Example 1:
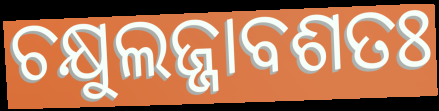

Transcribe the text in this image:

ଚକ୍ଷୁଲଜ୍ଜାବଶତଃ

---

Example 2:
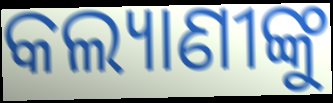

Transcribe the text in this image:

କଲ୍ୟାଣୀଙ୍କୁ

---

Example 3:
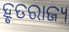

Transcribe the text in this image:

ହୃତରାଜ୍ୟ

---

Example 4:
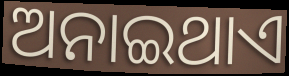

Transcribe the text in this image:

ଅନାଇଥାଏ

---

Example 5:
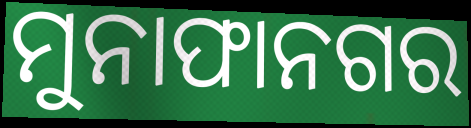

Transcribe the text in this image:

ମୁନାଫାନଗର